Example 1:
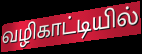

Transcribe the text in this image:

வழிகாட்டியில்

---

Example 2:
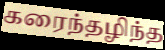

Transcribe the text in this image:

கரைந்தழிந்த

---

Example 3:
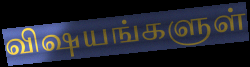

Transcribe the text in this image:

விஷயங்களுள்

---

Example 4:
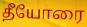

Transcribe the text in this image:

தீயோரை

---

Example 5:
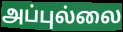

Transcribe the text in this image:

அப்புல்லை